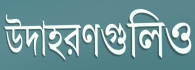
উদাহরণগুলিও